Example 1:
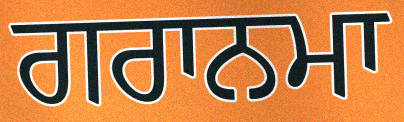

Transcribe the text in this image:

ਗਰਾਨਮਾ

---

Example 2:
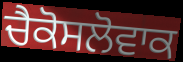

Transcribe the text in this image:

ਚੈਕੋਸਲੋਵਾਕ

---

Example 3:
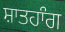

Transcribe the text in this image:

ਸ਼ਾਤਹਾੰਗ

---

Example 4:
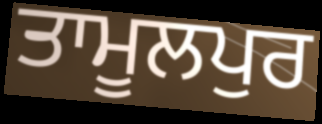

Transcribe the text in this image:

ਤਾਮੂਲਪੁਰ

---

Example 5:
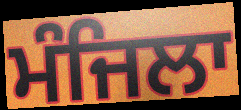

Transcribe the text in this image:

ਮੰਜਿਲਾ